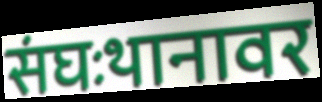
संघःथानावर